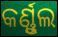
କର୍ଣ୍ଣୁଲ